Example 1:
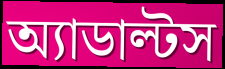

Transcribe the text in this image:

অ্যাডাল্টস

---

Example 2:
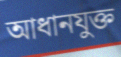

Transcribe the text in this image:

আধানযুক্ত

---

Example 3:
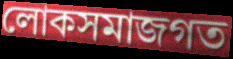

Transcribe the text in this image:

লোকসমাজগত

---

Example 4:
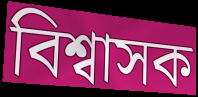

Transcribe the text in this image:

বিশ্বাসক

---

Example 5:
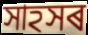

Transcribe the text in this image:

সাহসৰ